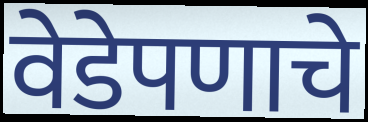
वेडेपणाचे